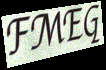
FMEG